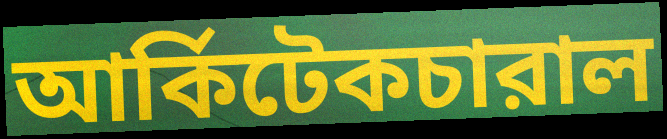
আর্কিটেকচারাল